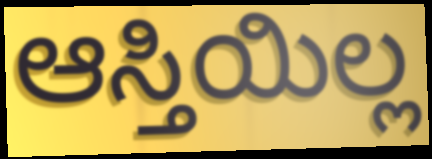
ಆಸ್ತಿಯಿಲ್ಲ